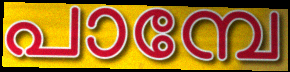
പാമ്പേ